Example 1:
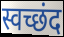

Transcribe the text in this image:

स्वच्छंद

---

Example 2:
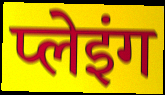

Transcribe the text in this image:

प्लेइंग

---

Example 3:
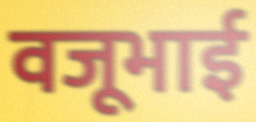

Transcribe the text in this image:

वजूभाई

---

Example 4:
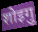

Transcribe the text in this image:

शोइगु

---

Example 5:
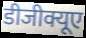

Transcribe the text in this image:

डीजीक्यूए